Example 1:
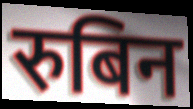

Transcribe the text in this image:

रुबिन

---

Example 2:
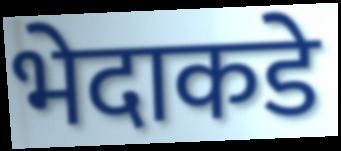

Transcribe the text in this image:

भेदाकडे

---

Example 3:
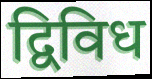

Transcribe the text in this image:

द्विविध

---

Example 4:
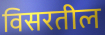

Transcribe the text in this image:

विसरतील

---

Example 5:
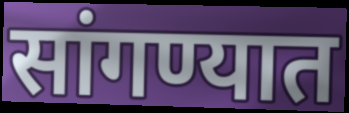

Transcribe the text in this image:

सांगण्यात